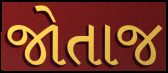
જોતાજ